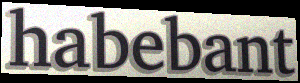
habebant